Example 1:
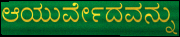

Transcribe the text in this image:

ಆಯುರ್ವೇದವನ್ನು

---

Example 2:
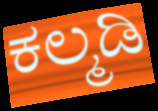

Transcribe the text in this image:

ಕಲ್ಮಡಿ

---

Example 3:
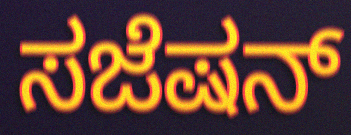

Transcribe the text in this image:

ಸಜೆಷನ್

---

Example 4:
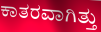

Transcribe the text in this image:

ಕಾತರವಾಗಿತ್ತು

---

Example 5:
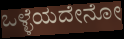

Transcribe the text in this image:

ಒಳ್ಳೆಯದೇನೋ